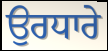
ਉਰਧਾਰੇ